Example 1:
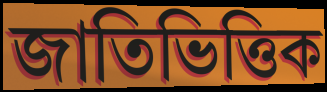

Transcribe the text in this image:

জাতিভিত্তিক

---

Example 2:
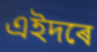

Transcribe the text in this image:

এইদৰে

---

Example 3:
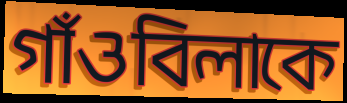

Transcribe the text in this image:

গাঁওবিলাকে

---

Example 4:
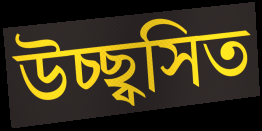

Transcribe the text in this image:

উচ্ছ্বসিত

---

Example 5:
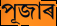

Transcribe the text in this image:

পূজাৰ